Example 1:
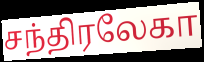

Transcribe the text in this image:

சந்திரலேகா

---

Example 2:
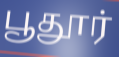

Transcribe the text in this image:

பூதூர்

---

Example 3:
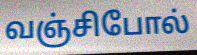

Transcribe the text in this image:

வஞ்சிபோல்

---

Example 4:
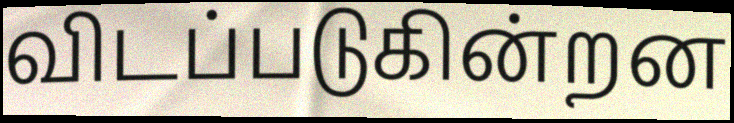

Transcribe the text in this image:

விடப்படுகின்றன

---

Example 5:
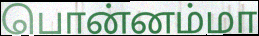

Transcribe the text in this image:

பொன்னம்மா